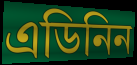
এডিনিন